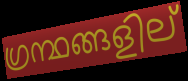
ഗ്രന്ഥങ്ങളില്